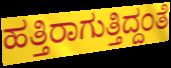
ಹತ್ತಿರಾಗುತ್ತಿದ್ದಂತೆ